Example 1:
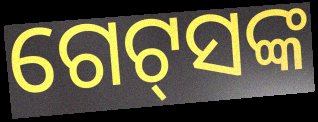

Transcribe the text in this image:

ଗେଟ୍‌ସଙ୍କ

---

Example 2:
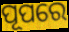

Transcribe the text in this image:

ପୂପରେ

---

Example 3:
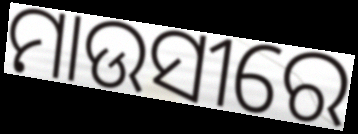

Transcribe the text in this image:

ମାଉସୀରେ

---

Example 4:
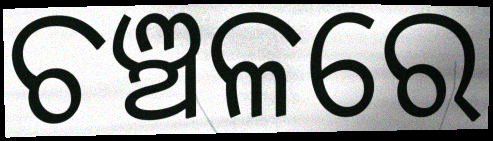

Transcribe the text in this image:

ଚଞ୍ଚଳରେ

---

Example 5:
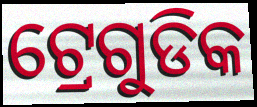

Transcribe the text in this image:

ଟ୍ରେଗୁଡିକ